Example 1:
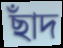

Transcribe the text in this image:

ছাঁদ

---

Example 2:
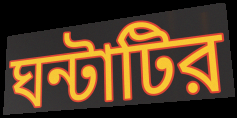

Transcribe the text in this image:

ঘন্টাটির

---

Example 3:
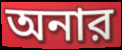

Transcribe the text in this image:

অনার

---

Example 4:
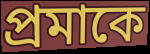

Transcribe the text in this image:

প্রমাকে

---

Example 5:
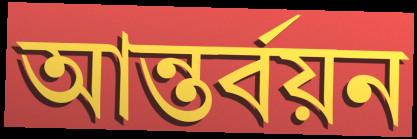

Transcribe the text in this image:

আন্তর্বয়ন